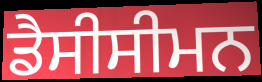
ਡੈਸੀਸੀਮਨ